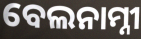
ବେଲନାମ୍ନୀ